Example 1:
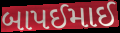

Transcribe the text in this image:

બાપઈમાઈ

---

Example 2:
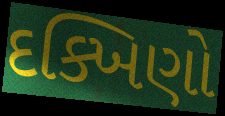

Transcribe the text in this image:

દક્ખિણો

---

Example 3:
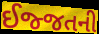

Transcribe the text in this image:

ઈજ્જતની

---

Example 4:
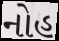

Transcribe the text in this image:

નોહ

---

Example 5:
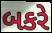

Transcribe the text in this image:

બકરે